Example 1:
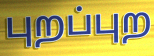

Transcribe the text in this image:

புறப்புற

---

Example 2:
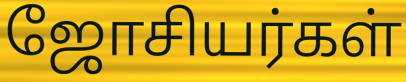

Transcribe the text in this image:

ஜோசியர்கள்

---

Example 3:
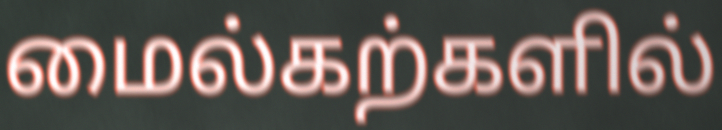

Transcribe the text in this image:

மைல்கற்களில்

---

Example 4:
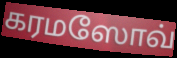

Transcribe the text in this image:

கரமஸோவ்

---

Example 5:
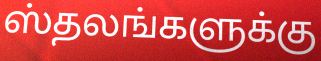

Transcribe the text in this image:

ஸ்தலங்களுக்கு